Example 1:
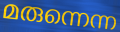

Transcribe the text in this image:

മരുന്നെന്ന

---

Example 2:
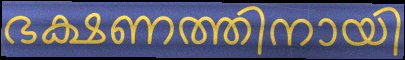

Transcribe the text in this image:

ഭക്ഷണത്തിനായി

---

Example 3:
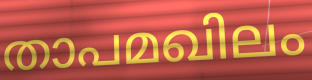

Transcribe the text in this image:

താപമഖിലം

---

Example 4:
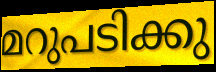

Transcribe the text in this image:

മറുപടിക്കു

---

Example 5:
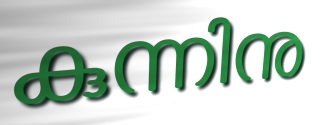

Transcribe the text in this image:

കുന്നിനു